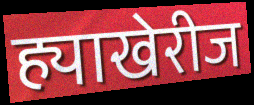
ह्याखेरीज